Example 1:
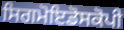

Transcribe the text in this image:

ਸਿਗਮੋਇਡੋਸਕੋਪੀ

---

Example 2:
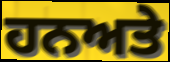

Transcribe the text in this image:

ਹਨਅਤੇ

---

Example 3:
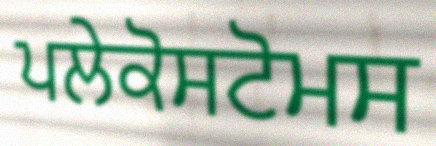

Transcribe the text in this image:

ਪਲੇਕੋਸਟੋਮਸ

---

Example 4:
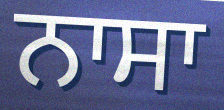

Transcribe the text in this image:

ਨਾਸਾ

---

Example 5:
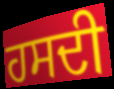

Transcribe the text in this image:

ਹਸਦੀ